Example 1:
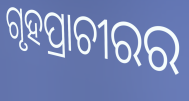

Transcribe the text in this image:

ଗୃହପ୍ରାଚୀରର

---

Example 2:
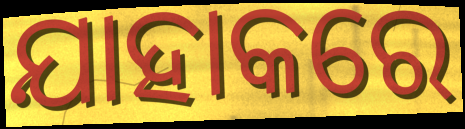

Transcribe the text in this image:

ଯାହାକରେ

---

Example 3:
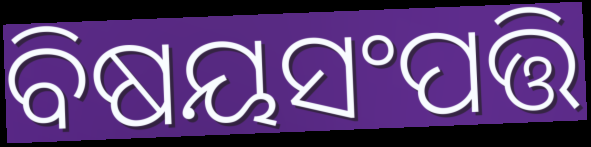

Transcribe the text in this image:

ବିଷୟସଂପତ୍ତି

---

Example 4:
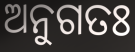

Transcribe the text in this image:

ଅନୁଗତଃ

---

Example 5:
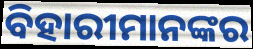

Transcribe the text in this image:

ବିହାରୀମାନଙ୍କର